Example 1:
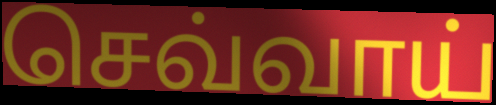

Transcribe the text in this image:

செவ்வாய்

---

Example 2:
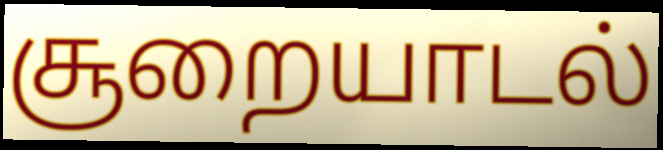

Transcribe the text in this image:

சூறையாடல்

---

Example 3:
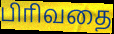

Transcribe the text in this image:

பிரிவதை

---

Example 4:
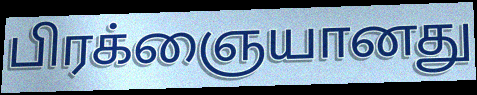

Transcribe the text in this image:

பிரக்ஞையானது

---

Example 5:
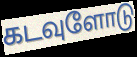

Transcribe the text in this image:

கடவுளோடு